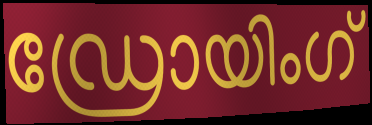
ഡ്രോയിംഗ്